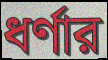
ধর্ণার